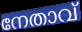
നേതാവ്